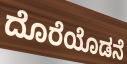
ದೊರೆಯೊಡನೆ